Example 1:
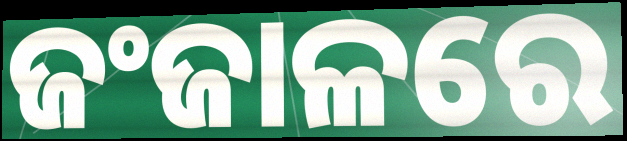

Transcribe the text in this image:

ଜଂଜାଳରେ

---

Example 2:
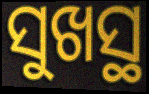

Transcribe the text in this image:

ସୁଖସ୍ଥ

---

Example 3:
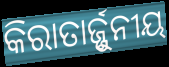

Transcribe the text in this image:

କିରାତାର୍ଜ୍ଜୁନୀୟ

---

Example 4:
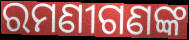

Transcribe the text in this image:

ରମଣୀଗଣଙ୍କ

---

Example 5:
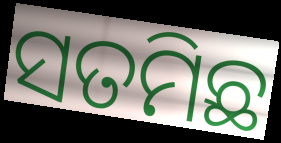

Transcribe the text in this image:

ସତମିଛ